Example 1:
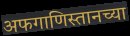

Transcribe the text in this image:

अफगाणिस्तानच्या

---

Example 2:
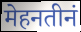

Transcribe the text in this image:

मेहनतीनं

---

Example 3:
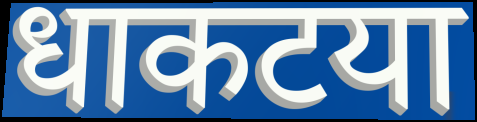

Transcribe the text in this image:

धाकटया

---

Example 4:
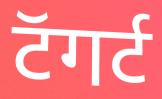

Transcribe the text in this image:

टॅगर्ट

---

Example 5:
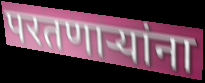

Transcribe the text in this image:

परतणाऱ्यांना